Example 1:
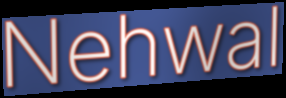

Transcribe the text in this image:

Nehwal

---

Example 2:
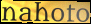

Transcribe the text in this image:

nahoto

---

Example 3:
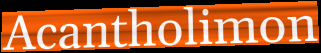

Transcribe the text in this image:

Acantholimon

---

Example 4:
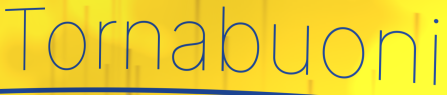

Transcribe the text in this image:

Tornabuoni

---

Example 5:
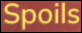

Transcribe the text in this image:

Spoils